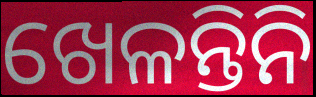
ଖେଳନ୍ତିନି